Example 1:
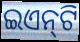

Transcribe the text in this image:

ଇଏନ୍‌ଟି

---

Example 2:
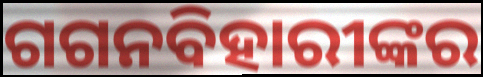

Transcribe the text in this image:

ଗଗନବିହାରୀଙ୍କର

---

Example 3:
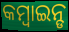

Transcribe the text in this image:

କମ୍ବାଇନ୍ଡ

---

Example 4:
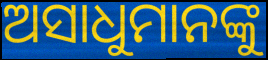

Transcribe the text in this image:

ଅସାଧୁମାନଙ୍କୁ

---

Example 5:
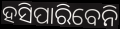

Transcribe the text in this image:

ହସିପାରିବେନି